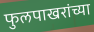
फुलपाखरांच्या